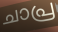
ചാപ്ര